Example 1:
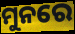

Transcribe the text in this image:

ମୁନରେ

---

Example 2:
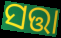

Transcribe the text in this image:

ସତ୍ତା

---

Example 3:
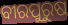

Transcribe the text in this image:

ବୀରପୁରୁଷ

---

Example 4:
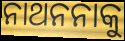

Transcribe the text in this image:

ନାଥନନାକୁ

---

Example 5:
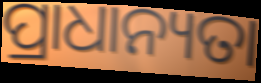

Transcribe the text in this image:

ପ୍ରାଧାନ୍ୟତା